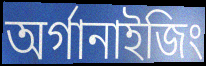
অর্গানাইজিং